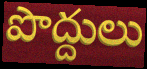
పొద్దులు